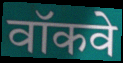
वॉकवे